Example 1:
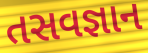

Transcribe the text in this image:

તસવજ્ઞાન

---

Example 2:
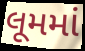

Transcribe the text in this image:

લૂમમાં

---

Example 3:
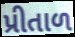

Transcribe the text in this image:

પ્રીતાળ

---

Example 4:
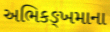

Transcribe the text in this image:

અભિકઙ્ખમાના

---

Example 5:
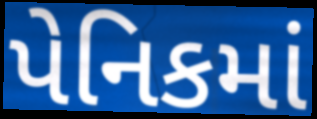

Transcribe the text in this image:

પેનિકમાં